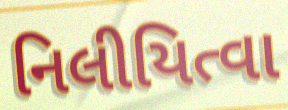
નિલીયિત્વા